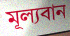
মূল্যবান